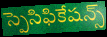
స్పెసిఫికేషన్స్